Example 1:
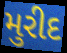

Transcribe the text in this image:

મુરીદ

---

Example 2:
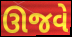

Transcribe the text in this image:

ઊજવે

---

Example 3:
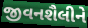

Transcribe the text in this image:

જીવનશૈલીને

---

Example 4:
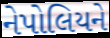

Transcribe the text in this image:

નેપોલિયને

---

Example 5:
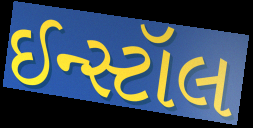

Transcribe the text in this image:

ઈન્સ્ટૉલ